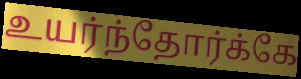
உயர்ந்தோர்க்கே